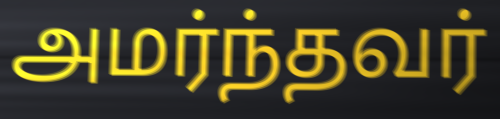
அமர்ந்தவர்